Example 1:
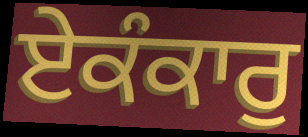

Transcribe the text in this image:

ਏਕੰਕਾਰੁ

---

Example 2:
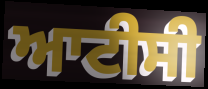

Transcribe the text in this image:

ਆਟੀਸੀ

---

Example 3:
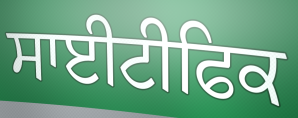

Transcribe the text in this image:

ਸਾਈਟੀਫਿਕ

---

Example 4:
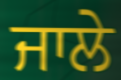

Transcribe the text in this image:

ਜਾਲੇ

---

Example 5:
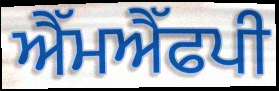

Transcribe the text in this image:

ਐੱਮਐੱਫਪੀ